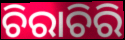
ଚିରାଚିରି